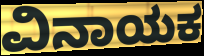
ವಿನಾಯಕ